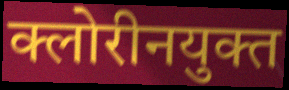
क्लोरीनयुक्त